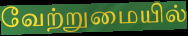
வேற்றுமையில்